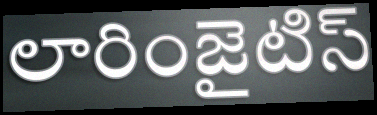
లారింజైటిస్